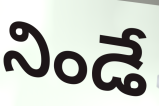
నిండే